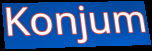
Konjum